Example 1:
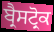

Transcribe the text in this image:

ਬ੍ਰੈਸਟ੍ਰੋਕ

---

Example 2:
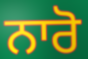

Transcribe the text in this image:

ਨਾਰੋ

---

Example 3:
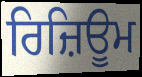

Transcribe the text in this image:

ਰਿਜ਼ਿਊਮ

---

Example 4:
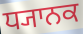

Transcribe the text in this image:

ਧ੍ਯਾਨਕ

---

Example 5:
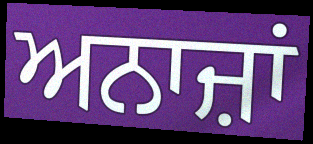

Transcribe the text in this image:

ਅਨਾਜ਼ਾਂ